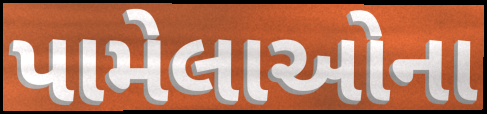
પામેલાઓના